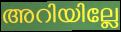
അറിയില്ലേ